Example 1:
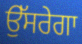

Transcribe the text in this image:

ਉੱਸਰੇਗਾ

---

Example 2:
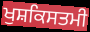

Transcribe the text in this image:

ਖੁਸ਼ਕਿਸਤਮੀ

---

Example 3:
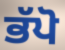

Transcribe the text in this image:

ਭੱਪੋ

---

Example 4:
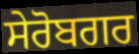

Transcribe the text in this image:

ਸੇਰੋਬਗਰ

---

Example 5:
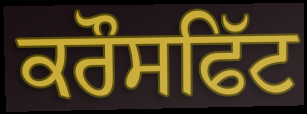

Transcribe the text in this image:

ਕਰੌਸਫਿੱਟ